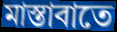
মাস্তাবাতে